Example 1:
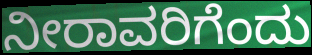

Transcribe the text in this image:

ನೀರಾವರಿಗೆಂದು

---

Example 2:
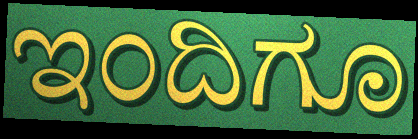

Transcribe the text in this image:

ಇಂದಿಗೂ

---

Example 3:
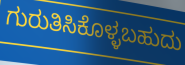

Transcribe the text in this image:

ಗುರುತಿಸಿಕೊಳ್ಳಬಹುದು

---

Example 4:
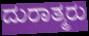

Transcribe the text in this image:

ದುರಾತ್ಮರು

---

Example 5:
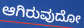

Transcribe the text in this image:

ಆಗಿರುವುದೋ